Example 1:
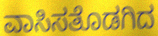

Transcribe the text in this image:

ವಾಸಿಸತೊಡಗಿದ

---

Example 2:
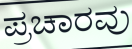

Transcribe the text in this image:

ಪ್ರಚಾರವು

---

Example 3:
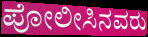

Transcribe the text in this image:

ಪೋಲೀಸಿನವರು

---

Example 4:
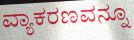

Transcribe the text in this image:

ವ್ಯಾಕರಣವನ್ನೂ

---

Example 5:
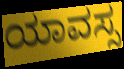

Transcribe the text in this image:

ಯಾವಸ್ಸ